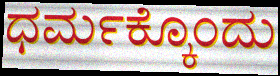
ಧರ್ಮಕ್ಕೊಂದು